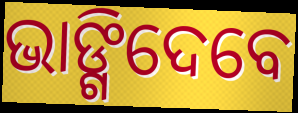
ଭାଙ୍ଗିଦେବେ